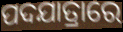
ପଦଯାତ୍ରାରେ